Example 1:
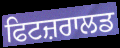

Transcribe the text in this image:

ਫਿਟਜ਼ਰਾਲਡ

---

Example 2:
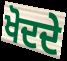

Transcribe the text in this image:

ਖੋਦਦੇ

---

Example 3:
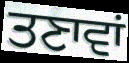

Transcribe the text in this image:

ਤਣਾਵਾਂ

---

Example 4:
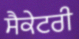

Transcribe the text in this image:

ਸੈਕੇਟਰੀ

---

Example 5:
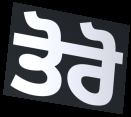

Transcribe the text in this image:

ਤੋਰੋ